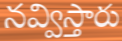
నవ్విస్తారు